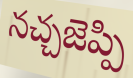
నచ్చజెప్పి